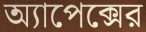
অ্যাপেক্সের